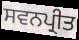
ਸਵਨਪ੍ਰੀਤ